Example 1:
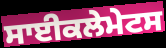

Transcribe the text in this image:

ਸਾਈਕਲੇਮੇਟਸ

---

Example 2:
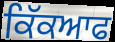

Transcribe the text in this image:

ਕਿੱਕਆਫ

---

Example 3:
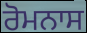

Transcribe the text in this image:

ਰੋਮਨਾਸ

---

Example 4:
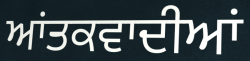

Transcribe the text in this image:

ਆਂਤਕਵਾਦੀਆਂ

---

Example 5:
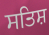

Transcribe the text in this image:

ਸਤਿਸ਼